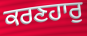
ਕਰਣਹਾਰੁ